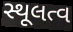
સ્થૂલત્વ